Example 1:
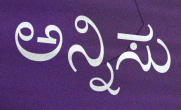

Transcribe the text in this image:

ಅನ್ನಿಸು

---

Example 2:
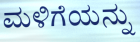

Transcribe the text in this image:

ಮಳಿಗೆಯನ್ನು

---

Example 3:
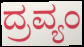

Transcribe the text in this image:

ದ್ರವ್ಯಂ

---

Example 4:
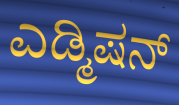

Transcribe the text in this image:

ಎಡ್ಮಿಷನ್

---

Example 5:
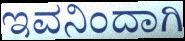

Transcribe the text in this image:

ಇವನಿಂದಾಗಿ